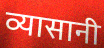
व्यासानी